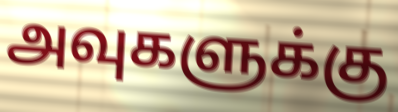
அவுகளுக்கு